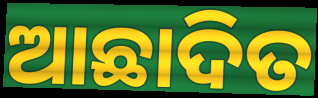
ଆଛାଦିତ